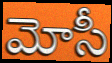
మోసీ